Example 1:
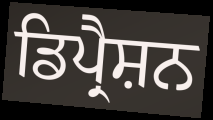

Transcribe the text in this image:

ਡਿਪ੍ਰੈਸ਼ਨ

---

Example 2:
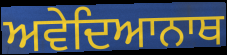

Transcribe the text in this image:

ਅਵੇਦਿਆਨਾਥ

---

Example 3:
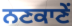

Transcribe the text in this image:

ਨਣਕਾਣੇਂ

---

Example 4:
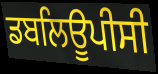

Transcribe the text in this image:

ਡਬਲਿਊਪੀਸੀ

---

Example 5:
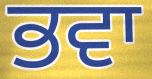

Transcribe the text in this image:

ਭਵਾ